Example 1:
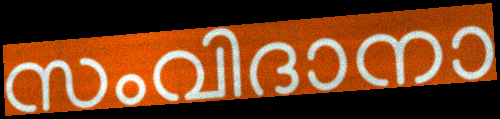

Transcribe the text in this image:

സംവിദാനാ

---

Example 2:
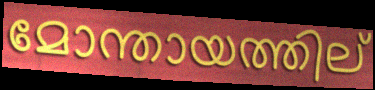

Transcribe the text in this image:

മോന്തായത്തില്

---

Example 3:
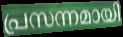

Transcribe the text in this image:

പ്രസന്നമായി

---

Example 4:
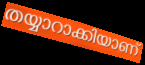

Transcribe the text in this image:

തയ്യാറാക്കിയാണ്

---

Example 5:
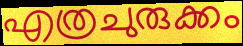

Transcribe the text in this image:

എത്രചുരുക്കം